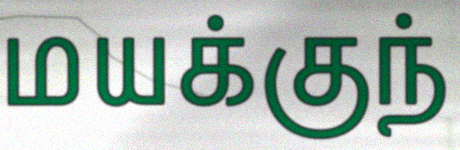
மயக்குந்